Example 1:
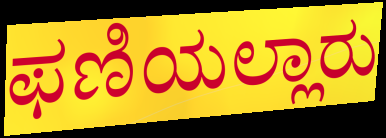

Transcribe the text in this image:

ಫಣಿಯಲ್ಲಾರು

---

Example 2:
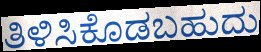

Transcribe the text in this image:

ತಿಳಿಸಿಕೊಡಬಹುದು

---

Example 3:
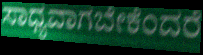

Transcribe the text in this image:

ಸಾಧ್ಯವಾಗಬೇಕೆಂದರೆ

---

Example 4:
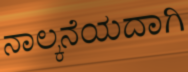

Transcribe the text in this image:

ನಾಲ್ಕನೆಯದಾಗಿ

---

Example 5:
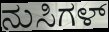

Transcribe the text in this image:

ನುಸಿಗಳ್